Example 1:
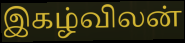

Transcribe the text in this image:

இகழ்விலன்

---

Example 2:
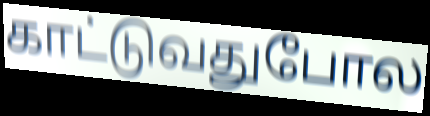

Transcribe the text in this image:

காட்டுவதுபோல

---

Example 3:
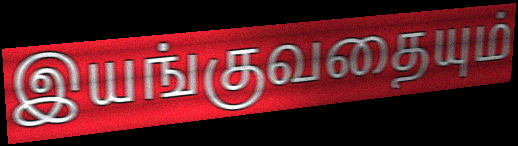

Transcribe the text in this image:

இயங்குவதையும்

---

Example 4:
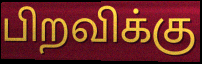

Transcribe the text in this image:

பிறவிக்கு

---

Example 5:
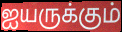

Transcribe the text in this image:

ஐயருக்கும்